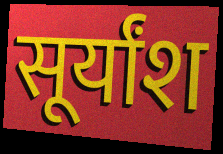
सूर्यांश